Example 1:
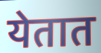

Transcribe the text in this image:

येतात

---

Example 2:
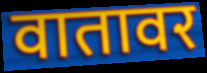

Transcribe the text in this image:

वातावर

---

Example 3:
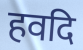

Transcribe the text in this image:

हवदि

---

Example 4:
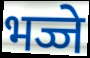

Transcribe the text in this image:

भज्जे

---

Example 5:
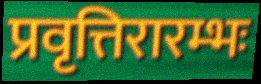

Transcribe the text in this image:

प्रवृत्तिरारम्भः